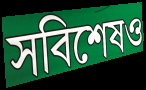
সবিশেষও